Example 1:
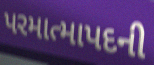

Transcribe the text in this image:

પરમાત્માપદની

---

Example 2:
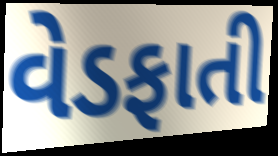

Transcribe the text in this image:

વેડફાતી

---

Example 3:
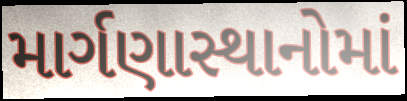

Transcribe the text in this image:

માર્ગણાસ્થાનોમાં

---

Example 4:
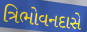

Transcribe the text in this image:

ત્રિભોવનદાસે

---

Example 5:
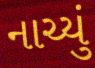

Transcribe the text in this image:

નાચ્યું